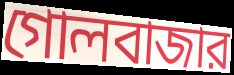
গোলবাজার